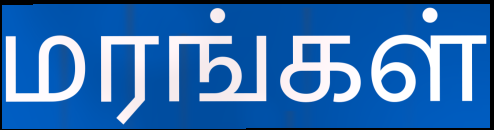
மரங்கள்